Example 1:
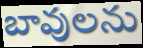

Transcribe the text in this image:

బావులను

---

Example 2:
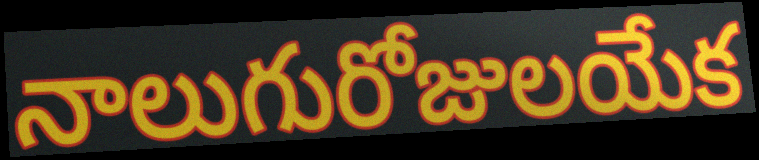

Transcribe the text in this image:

నాలుగురోజులయేక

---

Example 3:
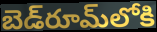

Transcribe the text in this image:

బెడ్‌రూమ్‌లోకి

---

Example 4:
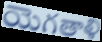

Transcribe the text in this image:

యెగతాళి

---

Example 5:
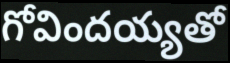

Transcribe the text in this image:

గోవిందయ్యతో